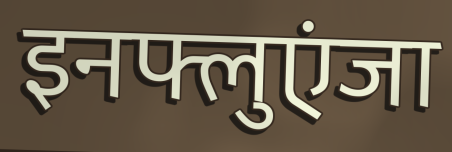
इनफ्लुएंजा